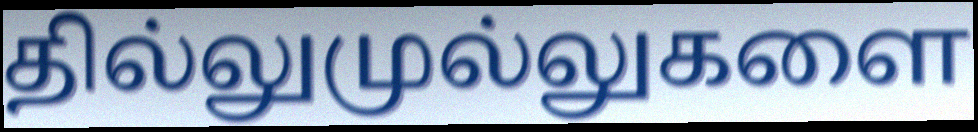
தில்லுமுல்லுகளை